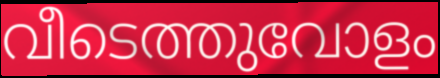
വീടെത്തുവോളം